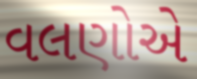
વલણોએ